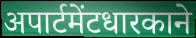
अपार्टमेंटधारकाने